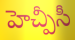
హెచ్పీసీ